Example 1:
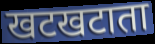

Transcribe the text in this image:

खटखटाता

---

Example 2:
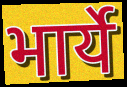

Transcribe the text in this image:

भार्ये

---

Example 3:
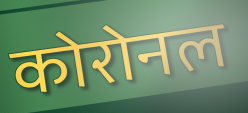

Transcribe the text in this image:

कोरोनल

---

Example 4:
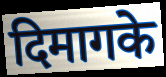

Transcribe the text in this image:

दिमागके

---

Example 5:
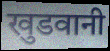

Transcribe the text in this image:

खुडवानी